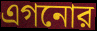
এগনোর